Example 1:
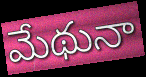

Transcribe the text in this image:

మేథునా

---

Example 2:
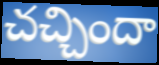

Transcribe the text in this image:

చచ్చిందా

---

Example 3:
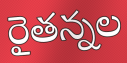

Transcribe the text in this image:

రైతన్నల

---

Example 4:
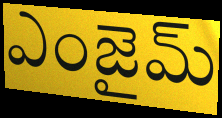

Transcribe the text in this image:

ఎంజైమ్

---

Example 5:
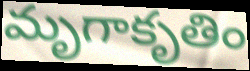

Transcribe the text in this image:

మృగాకృతిం